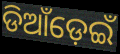
ଡିଆଁଡ଼େଇଁ